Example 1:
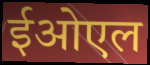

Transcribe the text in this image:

ईओएल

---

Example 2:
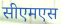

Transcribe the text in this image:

सीएमएस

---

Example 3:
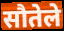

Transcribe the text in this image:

सौतेले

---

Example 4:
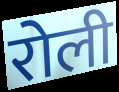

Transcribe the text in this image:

रोली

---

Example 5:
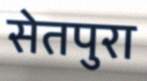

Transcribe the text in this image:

सेतपुरा